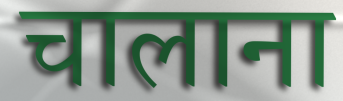
चालाना